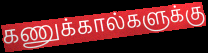
கணுக்கால்களுக்கு